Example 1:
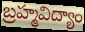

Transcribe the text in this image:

బ్రహ్మవిద్యాం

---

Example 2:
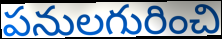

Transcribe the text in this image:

పనులగురించి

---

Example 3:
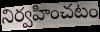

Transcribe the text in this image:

నిర్వహించటం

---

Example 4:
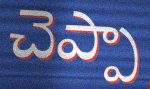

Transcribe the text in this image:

చెప్పా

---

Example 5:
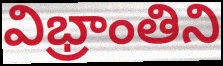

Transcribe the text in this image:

విభ్రాంతిని